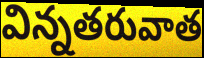
విన్నతరువాత